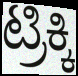
ಟ್ರಿಕ್ಕಿ